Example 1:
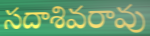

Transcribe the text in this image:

సదాశివరావు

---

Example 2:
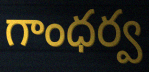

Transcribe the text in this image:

గాంధర్వ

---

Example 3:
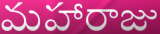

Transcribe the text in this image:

మహారాజు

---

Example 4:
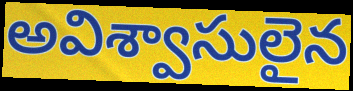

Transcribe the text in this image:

అవిశ్వాసులైన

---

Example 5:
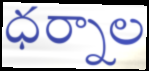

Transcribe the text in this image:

ధర్నాల